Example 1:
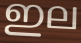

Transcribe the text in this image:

ഇല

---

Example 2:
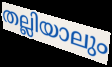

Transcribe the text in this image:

തല്ലിയാലും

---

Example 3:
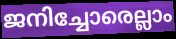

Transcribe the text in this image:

ജനിച്ചോരെല്ലാം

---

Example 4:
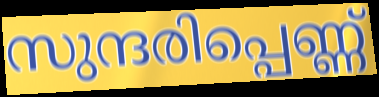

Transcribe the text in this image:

സുന്ദരിപ്പെണ്ണ്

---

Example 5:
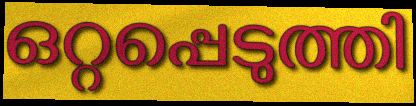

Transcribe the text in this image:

ഒറ്റപ്പെടുത്തി